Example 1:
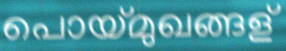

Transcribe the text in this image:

പൊയ്മുഖങ്ങള്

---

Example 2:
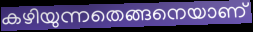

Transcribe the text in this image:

കഴിയുന്നതെങ്ങനെയാണ്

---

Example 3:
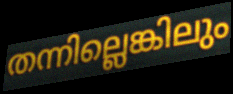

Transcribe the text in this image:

തന്നില്ലെങ്കിലും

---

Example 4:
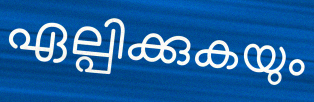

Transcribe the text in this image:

ഏല്പിക്കുകയും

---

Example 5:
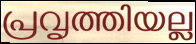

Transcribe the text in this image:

പ്രവൃത്തിയല്ല